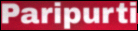
Paripurti